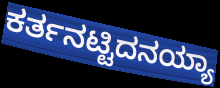
ಕರ್ತನಟ್ಟಿದನಯ್ಯಾ